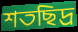
শতছিদ্র